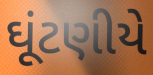
ઘૂંટણીયે